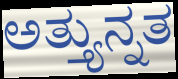
ಅತ್ತ್ಯುನ್ನತ